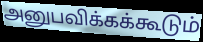
அனுபவிக்கக்கூடும்